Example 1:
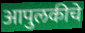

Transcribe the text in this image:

आपुलकीचे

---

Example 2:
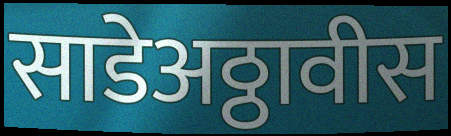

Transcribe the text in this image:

साडेअठ्ठावीस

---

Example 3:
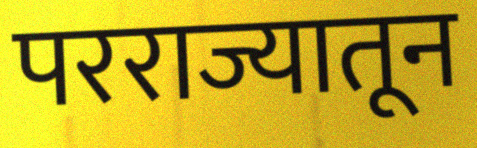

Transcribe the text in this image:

परराज्यातून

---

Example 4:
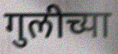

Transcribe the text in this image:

गुलीच्या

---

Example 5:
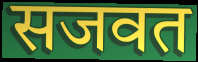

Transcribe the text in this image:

सजवत